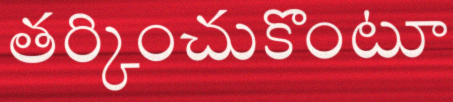
తర్కించుకొంటూ